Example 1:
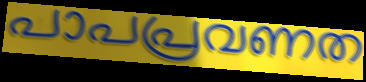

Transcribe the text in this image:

പാപപ്രവണത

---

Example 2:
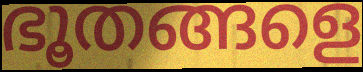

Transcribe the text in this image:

ഭൂതങ്ങളെ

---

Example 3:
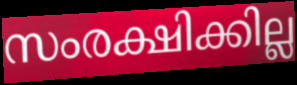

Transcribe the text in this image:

സംരക്ഷിക്കില്ല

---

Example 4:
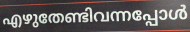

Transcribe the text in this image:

എഴുതേണ്ടിവന്നപ്പോൾ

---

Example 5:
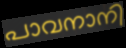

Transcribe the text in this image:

പാവനാനി